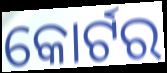
କୋର୍ଟର